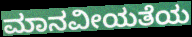
ಮಾನವೀಯತೆಯ